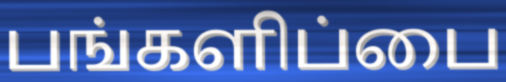
பங்களிப்பை